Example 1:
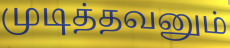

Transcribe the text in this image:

முடித்தவனும்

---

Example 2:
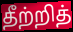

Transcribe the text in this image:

தீற்றித்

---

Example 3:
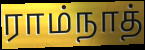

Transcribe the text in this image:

ராம்நாத்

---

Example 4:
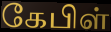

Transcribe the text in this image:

கேபிள்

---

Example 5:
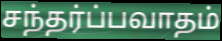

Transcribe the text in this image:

சந்தர்ப்பவாதம்